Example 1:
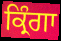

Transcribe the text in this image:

ਕ੍ਰਿੰਗਾ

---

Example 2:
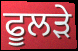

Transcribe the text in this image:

ਫੂਲੜੇ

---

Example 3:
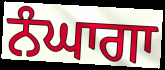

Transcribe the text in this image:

ਨੰਘਾਗਾ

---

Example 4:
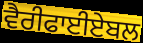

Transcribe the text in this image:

ਵੈਰੀਫਾਈਏਬਲ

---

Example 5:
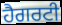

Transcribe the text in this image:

ਹੈਗਰਟੀ